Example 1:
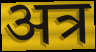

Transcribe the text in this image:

अत्र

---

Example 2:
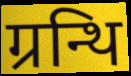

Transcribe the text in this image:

ग्रन्थि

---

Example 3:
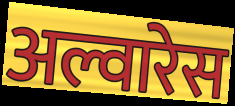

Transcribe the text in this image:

अल्वारेस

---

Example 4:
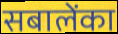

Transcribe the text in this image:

सबालेंका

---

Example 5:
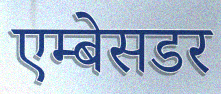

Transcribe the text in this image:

एम्बेसडर